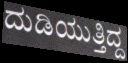
ದುಡಿಯುತ್ತಿದ್ದ